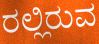
ರಲ್ಲಿರುವ